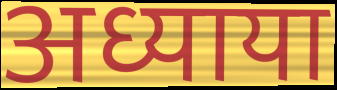
अध्याया